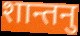
शान्तनु